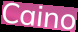
Caino